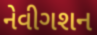
નેવીગશન